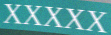
XXXXX